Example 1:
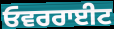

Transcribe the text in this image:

ਓਵਰਰਾਈਟ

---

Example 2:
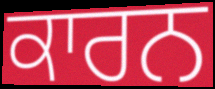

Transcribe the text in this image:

ਕਾਰਨ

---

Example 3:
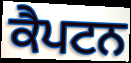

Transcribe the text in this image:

ਕੈਪਟਨ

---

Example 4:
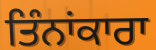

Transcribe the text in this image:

ਤਿੰਨਾਂਕਾਰਾ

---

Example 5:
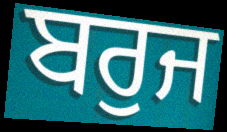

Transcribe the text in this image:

ਬਰੁਜ